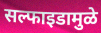
सल्फाइडामुळे